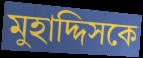
মুহাদ্দিসকে